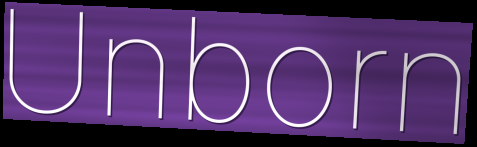
Unborn